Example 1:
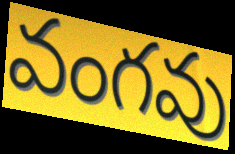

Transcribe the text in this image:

వంగవు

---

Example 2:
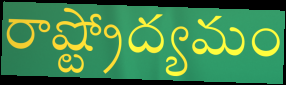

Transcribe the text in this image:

రాష్ట్రోద్యమం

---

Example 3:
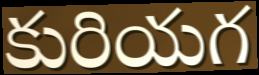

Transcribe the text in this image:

కురియగ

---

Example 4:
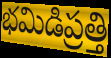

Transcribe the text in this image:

భమిడిప్రత్తి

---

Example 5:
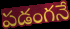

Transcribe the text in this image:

పడంగనే